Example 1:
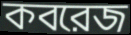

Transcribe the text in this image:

কবরেজ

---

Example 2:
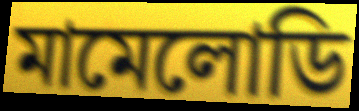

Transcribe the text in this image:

মামেলোডি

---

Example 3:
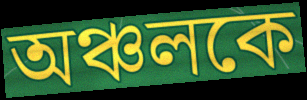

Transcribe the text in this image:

অঞ্চলকে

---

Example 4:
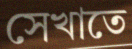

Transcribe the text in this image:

সেখাতে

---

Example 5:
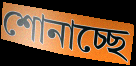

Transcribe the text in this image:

শোনাচ্ছে